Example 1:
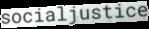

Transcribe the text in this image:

socialjustice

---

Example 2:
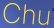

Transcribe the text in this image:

Chu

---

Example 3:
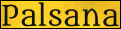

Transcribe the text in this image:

Palsana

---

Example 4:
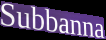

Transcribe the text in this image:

Subbanna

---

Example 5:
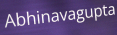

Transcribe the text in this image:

Abhinavagupta